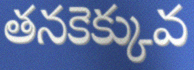
తనకెక్కువ